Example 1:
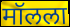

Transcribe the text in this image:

मॉलला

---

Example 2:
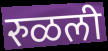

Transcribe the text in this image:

रुळली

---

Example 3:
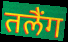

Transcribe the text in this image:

तलैंग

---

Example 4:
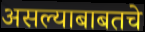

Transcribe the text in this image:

असल्याबाबतचे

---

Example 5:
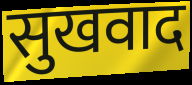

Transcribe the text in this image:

सुखवाद